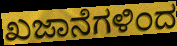
ಖಜಾನೆಗಳಿಂದ